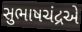
સુભાષચંદ્રએ